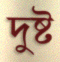
দুষ্ট